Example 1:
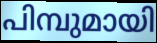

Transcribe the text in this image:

പിമ്പുമായി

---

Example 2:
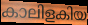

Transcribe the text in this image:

കാലിളകിയ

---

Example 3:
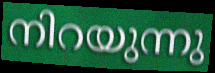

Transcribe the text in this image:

നിറയുന്നു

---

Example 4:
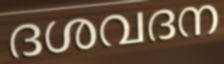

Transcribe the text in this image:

ദശവദന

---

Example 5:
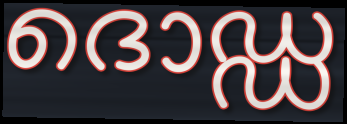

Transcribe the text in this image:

ദൊഡ്ഡ